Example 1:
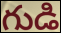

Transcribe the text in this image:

గుడి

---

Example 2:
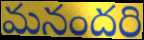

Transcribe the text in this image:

మనందరి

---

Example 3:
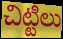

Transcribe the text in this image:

చిట్టిలు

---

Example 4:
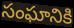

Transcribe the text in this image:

సంఘానికి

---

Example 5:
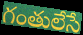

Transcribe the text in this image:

గంతులేసే